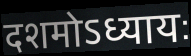
दशमोऽध्यायः